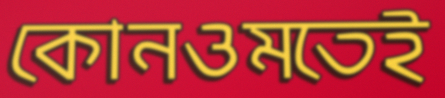
কোনওমতেই